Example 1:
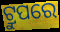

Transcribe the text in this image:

ଟ୍ରୁପରେ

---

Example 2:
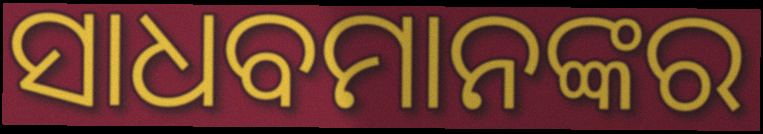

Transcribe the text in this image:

ସାଧବମାନଙ୍କର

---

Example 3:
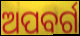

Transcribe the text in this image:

ଅପବର୍ଗ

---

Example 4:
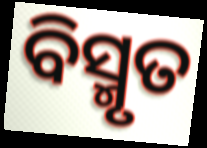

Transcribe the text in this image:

ବିସ୍ମୃତ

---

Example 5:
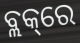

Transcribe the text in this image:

ବ୍ଲକ୍‌ରେ